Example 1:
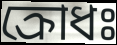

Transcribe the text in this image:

ক্রোধঃ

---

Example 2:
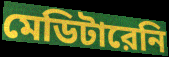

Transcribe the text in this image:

মেডিটারেনি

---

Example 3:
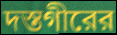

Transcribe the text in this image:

দস্তগীরের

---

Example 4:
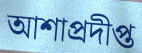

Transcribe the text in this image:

আশাপ্রদীপ্ত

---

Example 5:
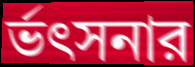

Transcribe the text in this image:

র্ভৎসনার